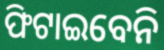
ଫିଟାଇବେନି